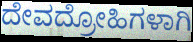
ದೇವದ್ರೋಹಿಗಳಾಗಿ